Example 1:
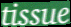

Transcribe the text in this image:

tissue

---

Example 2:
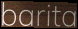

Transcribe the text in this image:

barita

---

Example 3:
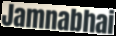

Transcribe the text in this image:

Jamnabhai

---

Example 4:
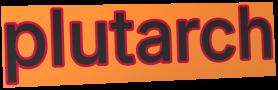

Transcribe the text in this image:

plutarch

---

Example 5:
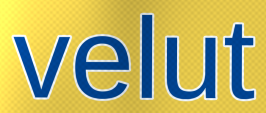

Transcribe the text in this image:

velut